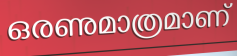
ഒരണുമാത്രമാണ്